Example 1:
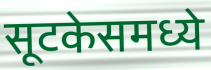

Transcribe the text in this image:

सूटकेसमध्ये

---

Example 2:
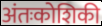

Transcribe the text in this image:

अंतःकोशिकी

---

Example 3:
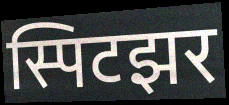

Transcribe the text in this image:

स्पिटझर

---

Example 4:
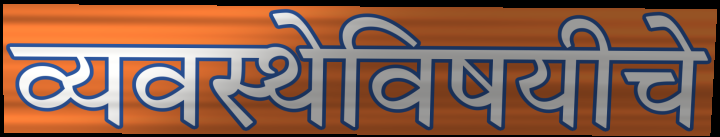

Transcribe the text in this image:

व्यवस्थेविषयीचे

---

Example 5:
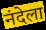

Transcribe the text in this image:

नंदेला